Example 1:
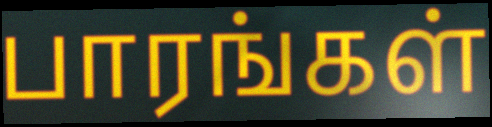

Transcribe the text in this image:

பாரங்கள்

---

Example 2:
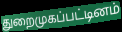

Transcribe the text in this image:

துறைமுகப்பட்டினம்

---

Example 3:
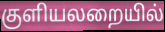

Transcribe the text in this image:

குளியலறையில்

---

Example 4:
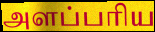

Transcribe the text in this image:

அளப்பரிய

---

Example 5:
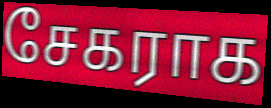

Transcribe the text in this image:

சேகராக